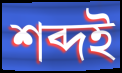
শব্দই